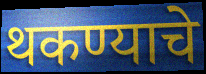
थकण्याचे